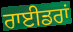
ਰਾਈਡਰਾਂ